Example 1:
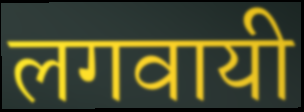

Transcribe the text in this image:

लगवायी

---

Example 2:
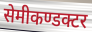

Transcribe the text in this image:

सेमीकण्डक्टर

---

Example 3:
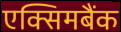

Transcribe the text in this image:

एक्सिमबैंक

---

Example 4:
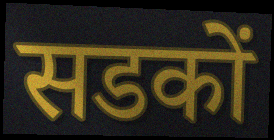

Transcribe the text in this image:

सडकों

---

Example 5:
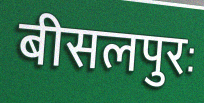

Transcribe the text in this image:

बीसलपुरः